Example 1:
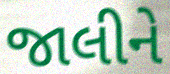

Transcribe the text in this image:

જાલીને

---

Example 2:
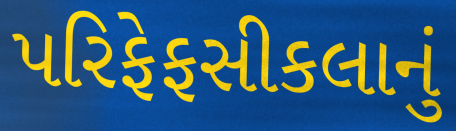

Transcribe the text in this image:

પરિફેફસીકલાનું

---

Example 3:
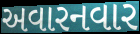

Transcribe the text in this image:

અવારનવાર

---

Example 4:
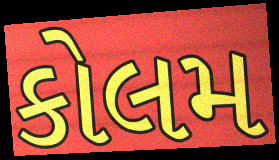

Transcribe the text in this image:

કોલમ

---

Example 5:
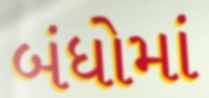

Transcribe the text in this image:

બંધોમાં